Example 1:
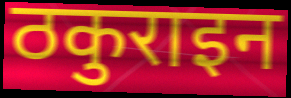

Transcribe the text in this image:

ठकुराइन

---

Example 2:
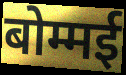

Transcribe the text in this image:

बोम्मई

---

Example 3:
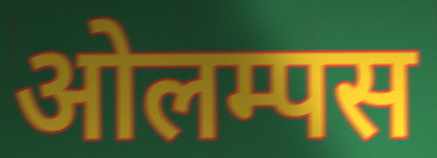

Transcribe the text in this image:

ओलम्पस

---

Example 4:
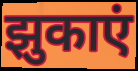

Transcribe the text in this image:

झुकाएं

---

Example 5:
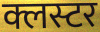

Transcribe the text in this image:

क्‍लस्‍टर